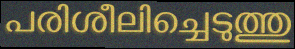
പരിശീലിച്ചെടുത്തു